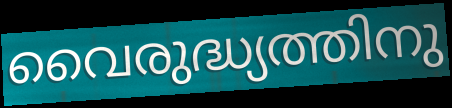
വൈരുദ്ധ്യത്തിനു